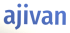
ajivan